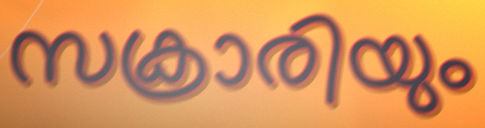
സക്രാരിയും